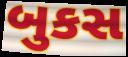
બુકસ